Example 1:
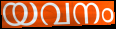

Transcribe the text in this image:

യവനം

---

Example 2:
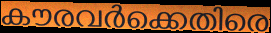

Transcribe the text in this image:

കൗരവർക്കെതിരെ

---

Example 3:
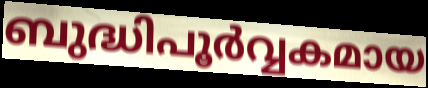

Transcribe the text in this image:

ബുദ്ധിപൂർവ്വകമായ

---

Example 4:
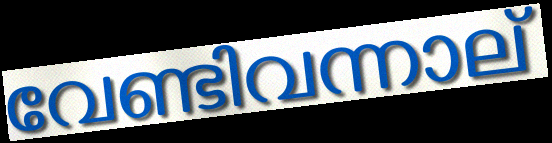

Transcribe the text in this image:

വേണ്ടിവന്നാല്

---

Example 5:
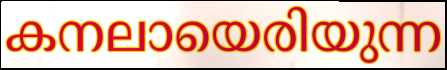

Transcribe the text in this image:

കനലായെരിയുന്ന